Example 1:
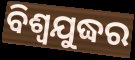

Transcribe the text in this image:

ବିଶ୍ବଯୁଦ୍ଧର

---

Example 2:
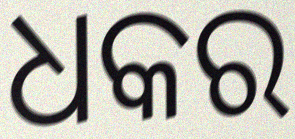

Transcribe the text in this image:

ଧକର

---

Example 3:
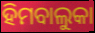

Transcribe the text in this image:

ହିମବାଲୁକା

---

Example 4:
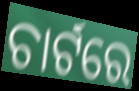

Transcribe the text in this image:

ଚାର୍ଟରେ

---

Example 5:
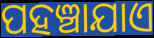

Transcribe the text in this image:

ପହଞ୍ଚାଯାଏ